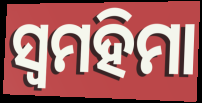
ସ୍ୱମହିମା